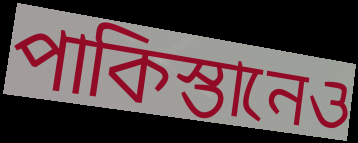
পাকিস্তানেও